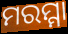
ମରମ୍ମା